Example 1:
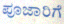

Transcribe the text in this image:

ಪೂಜಾರಿಗೆ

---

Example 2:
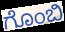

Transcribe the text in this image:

ಗೊಂಬಿ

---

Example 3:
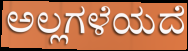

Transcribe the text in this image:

ಅಲ್ಲಗಳೆಯದೆ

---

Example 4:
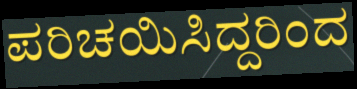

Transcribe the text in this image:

ಪರಿಚಯಿಸಿದ್ದರಿಂದ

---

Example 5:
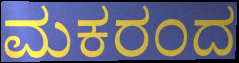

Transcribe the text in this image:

ಮಕರಂದ